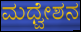
ಮಧ್ವೇಶನ